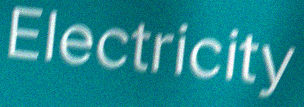
Electricity